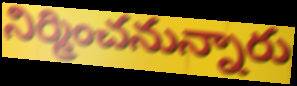
నిర్మించనున్నారు